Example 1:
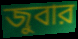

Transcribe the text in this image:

জুবার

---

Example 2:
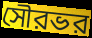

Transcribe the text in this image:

সৌরভর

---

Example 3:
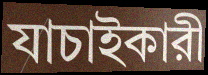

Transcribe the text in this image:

যাচাইকারী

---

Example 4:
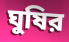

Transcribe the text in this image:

ঘুষির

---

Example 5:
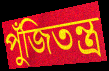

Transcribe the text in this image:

পুঁজিতন্ত্র